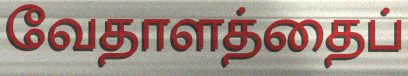
வேதாளத்தைப்